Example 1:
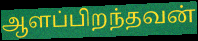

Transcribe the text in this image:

ஆளப்பிறந்தவன்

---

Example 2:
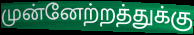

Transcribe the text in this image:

முன்னேற்றத்துக்கு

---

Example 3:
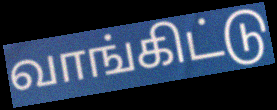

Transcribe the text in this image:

வாங்கிட்டு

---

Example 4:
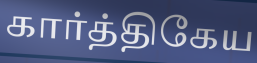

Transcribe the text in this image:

கார்த்திகேய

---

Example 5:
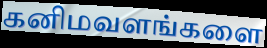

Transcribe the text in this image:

கனிமவளங்களை